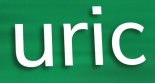
uric